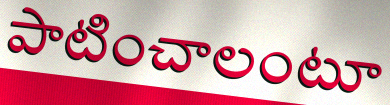
పాటించాలంటూ